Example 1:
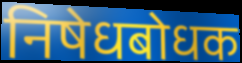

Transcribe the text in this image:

निषेधबोधक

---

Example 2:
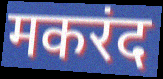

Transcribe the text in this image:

मकरंद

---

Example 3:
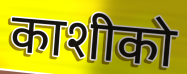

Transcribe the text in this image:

काशीको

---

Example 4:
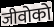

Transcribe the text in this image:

जीवोको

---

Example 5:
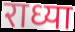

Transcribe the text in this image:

राध्या